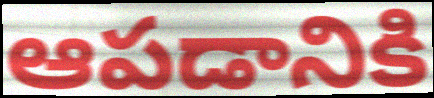
ఆపడానికి